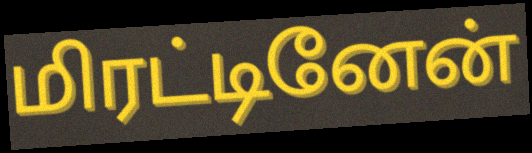
மிரட்டினேன்